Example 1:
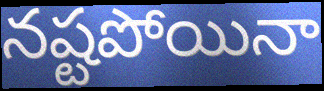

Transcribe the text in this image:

నష్టపోయినా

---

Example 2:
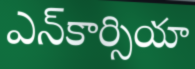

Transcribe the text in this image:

ఎన్‌కార్సియా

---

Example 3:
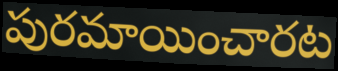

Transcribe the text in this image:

పురమాయించారట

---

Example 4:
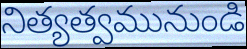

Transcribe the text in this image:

నిత్యత్వమునుండి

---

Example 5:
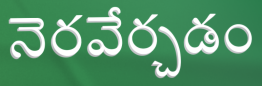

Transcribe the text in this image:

నెరవేర్చడం